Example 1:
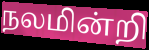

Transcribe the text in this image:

நலமின்றி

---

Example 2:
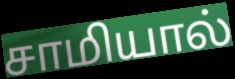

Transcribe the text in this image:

சாமியால்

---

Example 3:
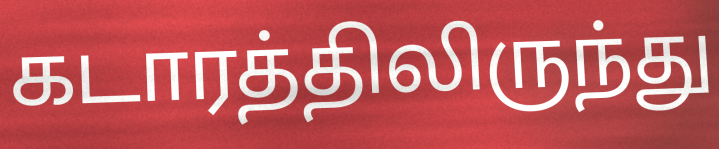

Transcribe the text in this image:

கடாரத்திலிருந்து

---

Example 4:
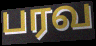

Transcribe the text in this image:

பரவ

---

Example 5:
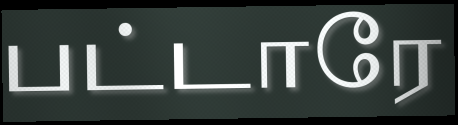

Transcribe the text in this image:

பட்டாரே